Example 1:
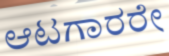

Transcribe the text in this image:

ಆಟಗಾರರೇ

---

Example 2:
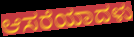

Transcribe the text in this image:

ಆಸರೆಯಾದಳು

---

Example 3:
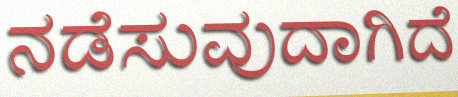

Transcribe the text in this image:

ನಡೆಸುವುದಾಗಿದೆ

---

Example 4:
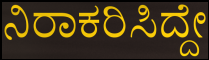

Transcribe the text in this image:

ನಿರಾಕರಿಸಿದ್ದೇ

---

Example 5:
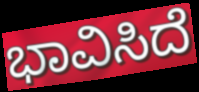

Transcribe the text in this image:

ಭಾವಿಸಿದೆ